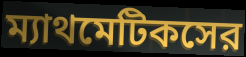
ম্যাথমেটিকসের